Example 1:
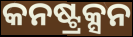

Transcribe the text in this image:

କନଷ୍ଟ୍ରକ୍ସନ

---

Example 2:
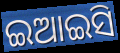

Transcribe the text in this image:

ଇଆଇସି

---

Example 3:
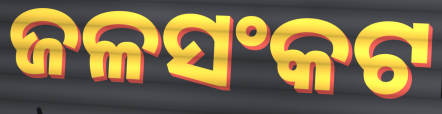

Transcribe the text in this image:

ଜଳସଂକଟ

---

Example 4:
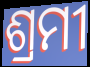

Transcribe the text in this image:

ଶ୍ରମୀ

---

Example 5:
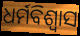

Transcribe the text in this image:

ଧର୍ମବିଶ୍ୱାସ